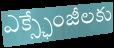
ఎక్స్ఛేంజీలకు